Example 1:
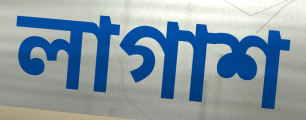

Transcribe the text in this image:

লাগাশ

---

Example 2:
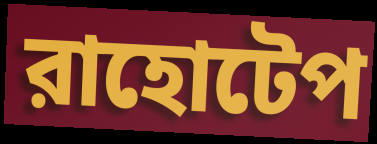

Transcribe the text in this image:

রাহোটেপ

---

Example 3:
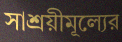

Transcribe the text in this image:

সাশ্রয়ীমূল্যের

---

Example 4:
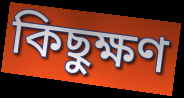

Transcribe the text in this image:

কিছুক্ষণ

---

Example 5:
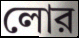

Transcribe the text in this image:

লোর